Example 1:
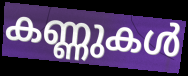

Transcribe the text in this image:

കണ്ണുകൾ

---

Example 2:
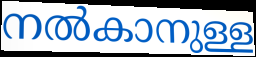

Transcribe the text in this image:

നൽകാനുള്ള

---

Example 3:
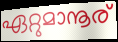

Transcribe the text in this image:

ഏറ്റുമാനൂര്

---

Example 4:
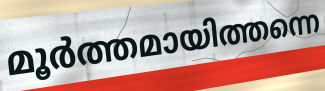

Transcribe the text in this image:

മൂർത്തമായിത്തന്നെ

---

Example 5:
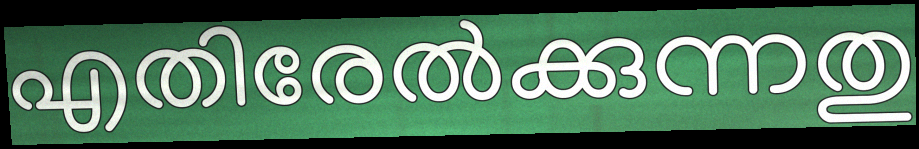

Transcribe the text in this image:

എതിരേൽക്കുന്നതു